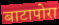
बाटापोरा